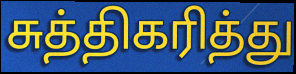
சுத்திகரித்து